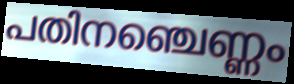
പതിനഞ്ചെണ്ണം